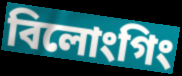
বিলোংগিং